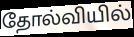
தோல்வியில்